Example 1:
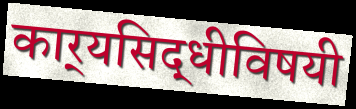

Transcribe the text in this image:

कार्यसिद्धीविषयी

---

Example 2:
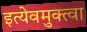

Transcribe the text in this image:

इत्येवमुक्त्वा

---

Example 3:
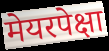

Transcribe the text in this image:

मेयरपेक्षा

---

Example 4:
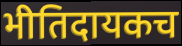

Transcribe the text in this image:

भीतिदायकच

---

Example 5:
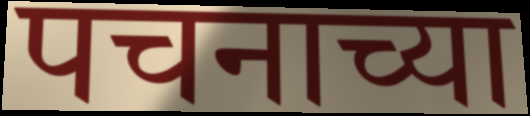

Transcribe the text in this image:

पचनाच्या